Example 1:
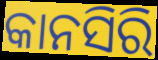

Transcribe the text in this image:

କାନସିରି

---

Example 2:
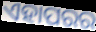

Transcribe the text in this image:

ଏହାପରର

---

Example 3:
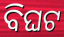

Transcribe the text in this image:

ବିଘଟ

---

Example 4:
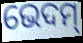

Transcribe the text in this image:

ଭେଦମ୍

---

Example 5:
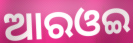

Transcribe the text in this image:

ଆରଓଇ